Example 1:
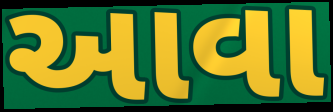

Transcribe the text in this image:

આવા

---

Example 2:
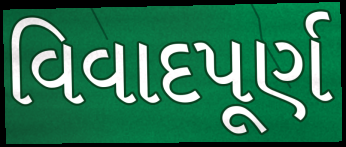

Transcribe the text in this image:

વિવાદપૂર્ણ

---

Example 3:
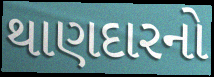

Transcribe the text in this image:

થાણદારનો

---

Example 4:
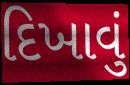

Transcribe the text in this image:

દિખાવું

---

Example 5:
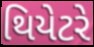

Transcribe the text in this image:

થિયેટરે